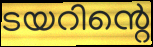
ടയറിന്റെ